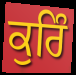
ਕੁਰਿੰ